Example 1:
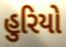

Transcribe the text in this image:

હુરિયો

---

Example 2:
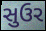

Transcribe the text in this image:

સુઉર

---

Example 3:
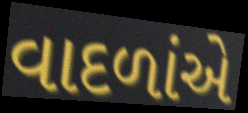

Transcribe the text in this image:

વાદળાંએ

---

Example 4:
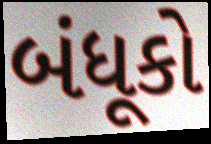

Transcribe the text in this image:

બંધૂકો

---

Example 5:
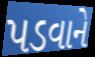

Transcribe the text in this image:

પડવાને